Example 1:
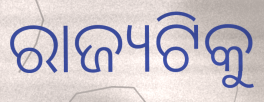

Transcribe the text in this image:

ରାଜ୍ୟଟିକୁ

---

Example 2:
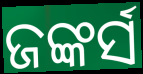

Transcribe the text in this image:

ଜଙ୍କର୍ସ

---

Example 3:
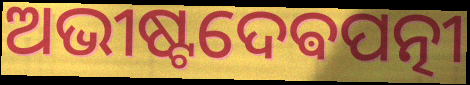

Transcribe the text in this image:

ଅଭୀଷ୍ଟଦେଵପତ୍ନୀ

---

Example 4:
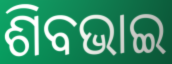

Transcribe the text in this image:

ଶିବଭାଇ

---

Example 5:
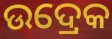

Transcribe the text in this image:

ଉଦ୍ରେକ